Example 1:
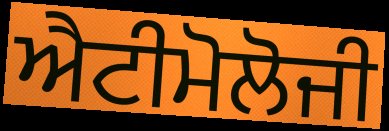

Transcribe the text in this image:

ਐਟੀਮੋਲੋਜੀ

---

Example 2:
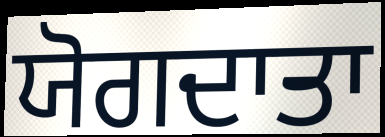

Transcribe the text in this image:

ਯੋਗਦਾਤਾ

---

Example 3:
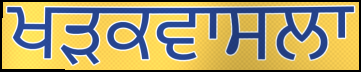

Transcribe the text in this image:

ਖੜਕਵਾਸਲਾ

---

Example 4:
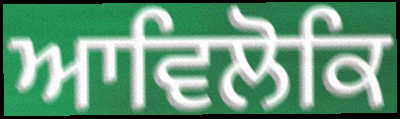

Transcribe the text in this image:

ਆਵਿਲੋਕਿ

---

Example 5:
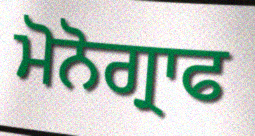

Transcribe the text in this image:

ਮੋਨੋਗ੍ਰਾਫ